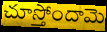
చూస్తోందామె